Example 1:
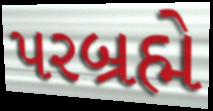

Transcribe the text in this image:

પરબ્રહ્મે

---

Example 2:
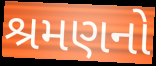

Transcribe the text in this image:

શ્રમણનો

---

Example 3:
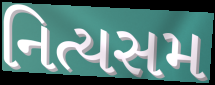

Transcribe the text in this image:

નિત્યસમ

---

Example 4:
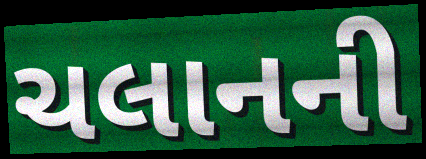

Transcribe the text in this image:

ચલાનની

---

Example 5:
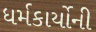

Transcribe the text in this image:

ધર્મકાર્યોની